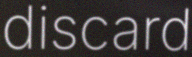
discard